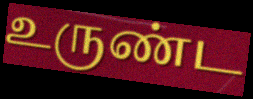
உருண்ட